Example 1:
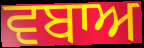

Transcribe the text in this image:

ਵਬਾਅ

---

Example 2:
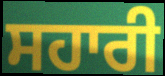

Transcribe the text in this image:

ਸਹਾਰੀ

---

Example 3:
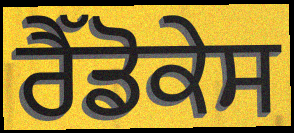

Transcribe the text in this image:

ਰੈੱਡੋਕੇਸ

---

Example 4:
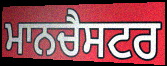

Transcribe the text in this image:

ਮਾਨਚੈਸਟਰ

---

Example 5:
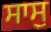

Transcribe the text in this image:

ਸਾਸੁ